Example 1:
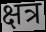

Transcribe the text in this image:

क्षत्र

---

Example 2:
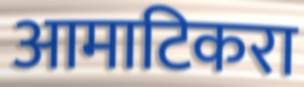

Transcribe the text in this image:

आमाटिकरा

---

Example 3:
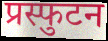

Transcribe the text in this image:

प्रस्फुटन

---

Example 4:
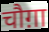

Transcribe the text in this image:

चौग़ा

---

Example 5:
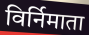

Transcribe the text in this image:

विर्निमाता